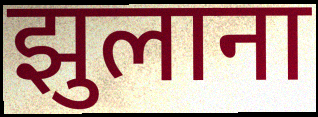
झुलाना